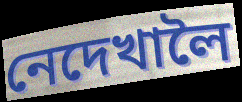
নেদেখালৈ